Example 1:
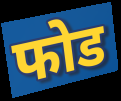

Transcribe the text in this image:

फोड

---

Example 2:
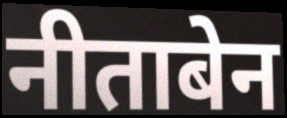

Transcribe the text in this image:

नीताबेन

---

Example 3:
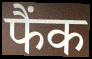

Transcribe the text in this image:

फैंक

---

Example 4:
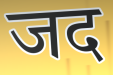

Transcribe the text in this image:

जद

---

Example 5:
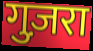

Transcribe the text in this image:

गुज़रा